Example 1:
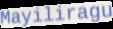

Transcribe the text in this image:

Mayiliragu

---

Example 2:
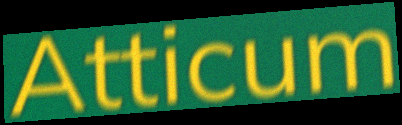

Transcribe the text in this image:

Atticum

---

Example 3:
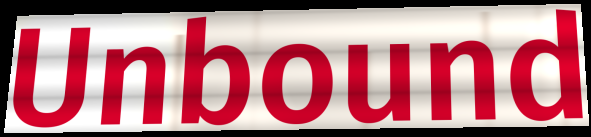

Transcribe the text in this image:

Unbound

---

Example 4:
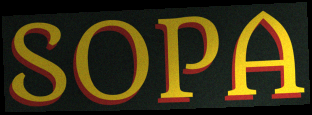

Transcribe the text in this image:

SOPA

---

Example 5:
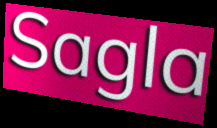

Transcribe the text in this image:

Sagla